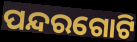
ପନ୍ଦରଗୋଟି